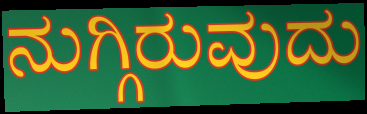
ನುಗ್ಗಿರುವುದು